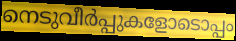
നെടുവീർപ്പുകളോടൊപ്പം